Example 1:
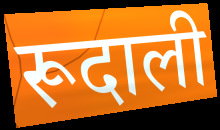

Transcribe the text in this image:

रूदाली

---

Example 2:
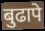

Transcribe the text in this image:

बुढापे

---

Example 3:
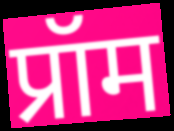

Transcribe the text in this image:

प्रॉम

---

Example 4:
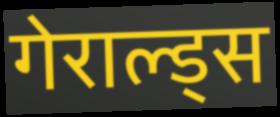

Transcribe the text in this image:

गेराल्ड्स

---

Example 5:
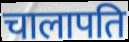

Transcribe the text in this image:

चालापति